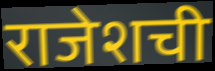
राजेशची